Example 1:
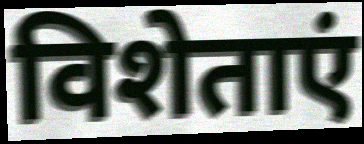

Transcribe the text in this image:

विशेताएं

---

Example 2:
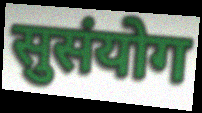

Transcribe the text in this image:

सुसंयोग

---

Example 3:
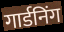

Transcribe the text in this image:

गार्डनिंग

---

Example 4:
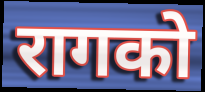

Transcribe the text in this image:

रागको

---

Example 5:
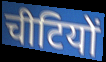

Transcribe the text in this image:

चीटियों